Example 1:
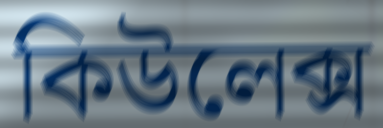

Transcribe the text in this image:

কিউলেক্স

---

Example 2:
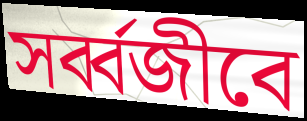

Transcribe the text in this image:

সর্ব্বজীবে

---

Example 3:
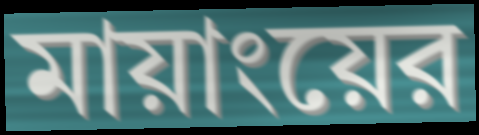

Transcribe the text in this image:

মায়াংয়ের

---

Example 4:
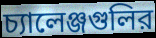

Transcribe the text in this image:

চ্যালেঞ্জগুলির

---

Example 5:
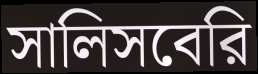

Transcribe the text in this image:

সালিসবেরি